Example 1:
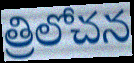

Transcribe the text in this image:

త్రిలోచన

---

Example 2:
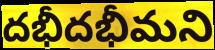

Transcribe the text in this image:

దభీదభీమని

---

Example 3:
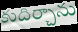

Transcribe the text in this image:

కుదిర్చాను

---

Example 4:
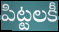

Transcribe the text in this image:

పిట్టలకీ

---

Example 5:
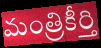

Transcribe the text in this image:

మంత్రికీర్తి